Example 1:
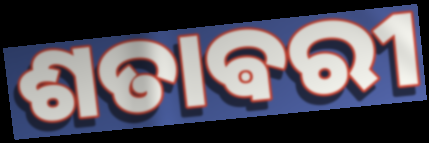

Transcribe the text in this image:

ଶତାଵରୀ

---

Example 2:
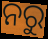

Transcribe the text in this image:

ନରୁ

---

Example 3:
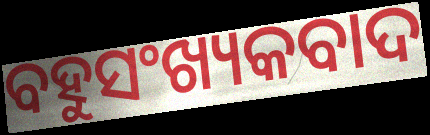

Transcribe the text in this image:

ବହୁସଂଖ୍ୟକବାଦ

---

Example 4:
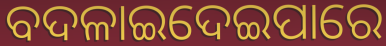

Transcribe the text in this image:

ବଦଳାଇଦେଇପାରେ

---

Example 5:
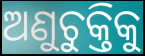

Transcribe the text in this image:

ଅଣୁଚୁକ୍ତିକୁ